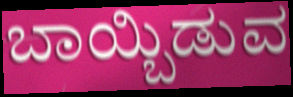
ಬಾಯ್ಬಿಡುವ